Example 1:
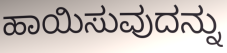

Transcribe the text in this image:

ಹಾಯಿಸುವುದನ್ನು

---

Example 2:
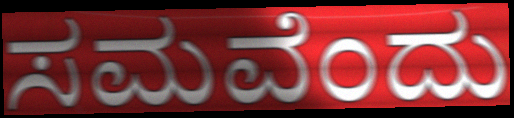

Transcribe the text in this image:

ಸಮವೆಂದು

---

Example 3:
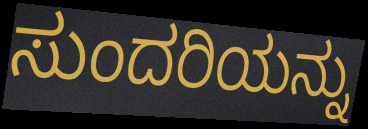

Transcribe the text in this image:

ಸುಂದರಿಯನ್ನು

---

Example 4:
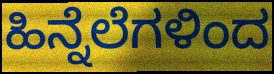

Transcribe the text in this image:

ಹಿನ್ನೆಲೆಗಳಿಂದ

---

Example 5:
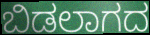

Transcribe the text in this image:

ಬಿಡಲಾಗದ